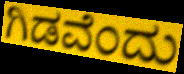
ಗಿಡವೆಂದು